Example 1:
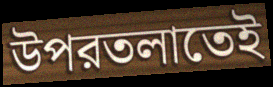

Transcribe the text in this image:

উপরতলাতেই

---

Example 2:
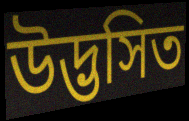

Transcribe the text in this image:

উদ্ভসিত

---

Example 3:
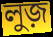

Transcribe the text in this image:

লুজ়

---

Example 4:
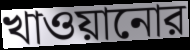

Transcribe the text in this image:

খাওয়ানোর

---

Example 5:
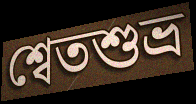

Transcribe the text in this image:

শ্বেতশুভ্র